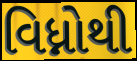
વિધ્નોથી